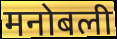
मनोबली